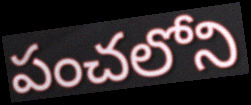
పంచలోని